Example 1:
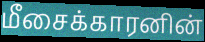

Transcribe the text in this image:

மீசைக்காரனின்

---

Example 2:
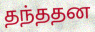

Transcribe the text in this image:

தந்ததன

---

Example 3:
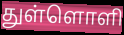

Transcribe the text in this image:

துள்ளொளி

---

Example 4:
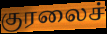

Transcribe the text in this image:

குரலைச்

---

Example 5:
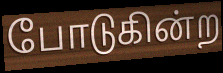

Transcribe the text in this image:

போடுகின்ற